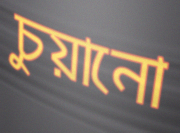
চুয়ানো